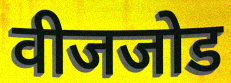
वीजजोड